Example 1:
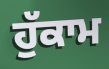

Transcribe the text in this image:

ਹੁੱਕਾਮ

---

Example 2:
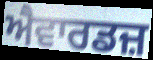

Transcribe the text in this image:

ਐਵਾਰਡਜ਼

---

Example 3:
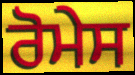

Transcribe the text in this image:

ਰੋਮੇਸ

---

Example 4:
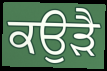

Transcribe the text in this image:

ਕਉੜੈ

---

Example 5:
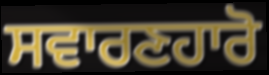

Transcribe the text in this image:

ਸਵਾਰਣਹਾਰੋ